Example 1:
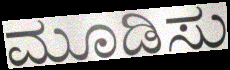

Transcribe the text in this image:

ಮೂಡಿಸು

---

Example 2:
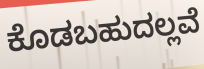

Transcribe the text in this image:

ಕೊಡಬಹುದಲ್ಲವೆ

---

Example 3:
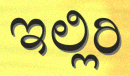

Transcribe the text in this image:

ಇಲ್ಲಿರಿ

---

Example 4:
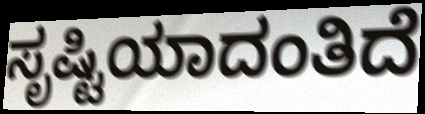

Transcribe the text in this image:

ಸೃಷ್ಟಿಯಾದಂತಿದೆ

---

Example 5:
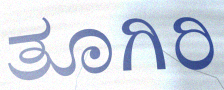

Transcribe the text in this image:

ತೂಗಿರಿ